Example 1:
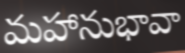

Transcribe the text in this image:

మహానుభావా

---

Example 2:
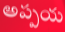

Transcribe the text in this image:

అప్పయ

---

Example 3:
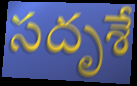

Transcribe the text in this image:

సదృశే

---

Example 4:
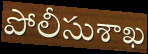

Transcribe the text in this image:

పోలీసుశాఖ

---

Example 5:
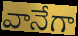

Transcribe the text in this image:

వానేగా